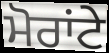
ਮੋਰਾਂਟੇ